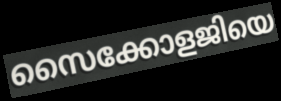
സൈക്കോളജിയെ